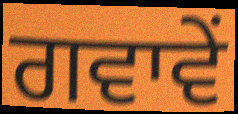
ਗਵਾਵੇਂ